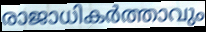
രാജാധികർത്താവും